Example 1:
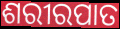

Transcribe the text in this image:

ଶରୀରପାତ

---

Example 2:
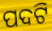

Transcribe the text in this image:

ପଦଟି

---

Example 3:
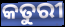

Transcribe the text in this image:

କତୁରୀ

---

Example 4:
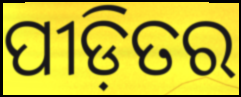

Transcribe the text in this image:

ପୀଡ଼ିତର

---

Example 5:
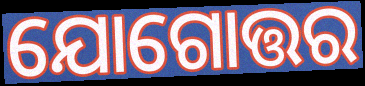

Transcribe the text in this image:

ଯୋଗୋତ୍ତର